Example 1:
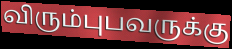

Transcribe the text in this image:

விரும்புபவருக்கு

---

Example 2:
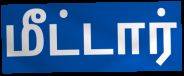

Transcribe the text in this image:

மீட்டார்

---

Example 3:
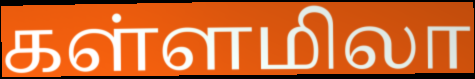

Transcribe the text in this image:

கள்ளமிலா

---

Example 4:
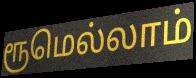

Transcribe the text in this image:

ரூமெல்லாம்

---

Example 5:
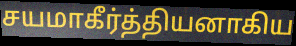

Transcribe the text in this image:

சயமாகீர்த்தியனாகிய